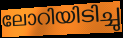
ലോറിയിടിച്ചു